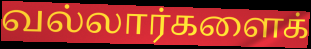
வல்லார்களைக்